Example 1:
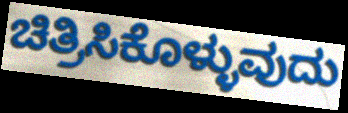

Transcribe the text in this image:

ಚಿತ್ರಿಸಿಕೊಳ್ಳುವುದು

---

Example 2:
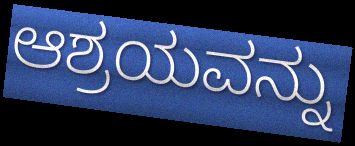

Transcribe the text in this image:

ಆಶ್ರಯವನ್ನು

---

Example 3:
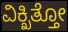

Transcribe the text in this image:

ವಿಕ್ಖಿತ್ತೋ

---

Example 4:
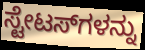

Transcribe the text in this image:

ಸ್ಟೇಟಸ್‌ಗಳನ್ನು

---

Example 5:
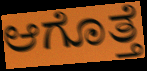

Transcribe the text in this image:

ಆಗೊತ್ತೆ